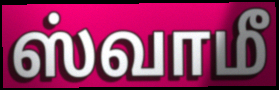
ஸ்வாமீ